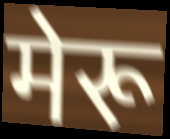
मेरू